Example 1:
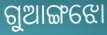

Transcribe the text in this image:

ଗୁଆଙ୍ଗଝୋ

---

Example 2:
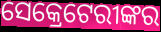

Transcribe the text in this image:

ସେକ୍ରେଟେରୀଙ୍କର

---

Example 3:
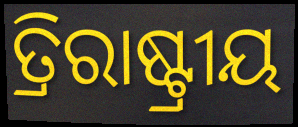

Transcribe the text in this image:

ତ୍ରିରାଷ୍ଟ୍ରୀୟ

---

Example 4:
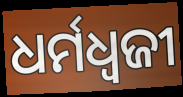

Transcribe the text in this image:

ଧର୍ମଧ୍ୱଜୀ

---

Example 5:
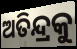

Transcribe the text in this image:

ଅତିନ୍ଦ୍ରକୁ